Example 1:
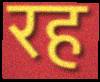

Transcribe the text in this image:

रह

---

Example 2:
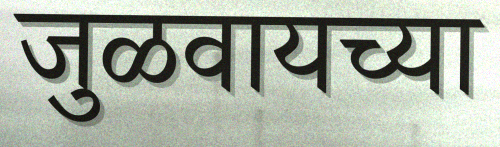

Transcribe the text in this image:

जुळवायच्या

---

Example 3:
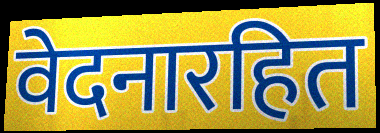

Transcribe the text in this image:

वेदनारहित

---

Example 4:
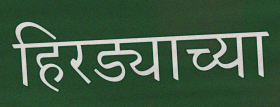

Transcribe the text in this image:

हिरड्याच्या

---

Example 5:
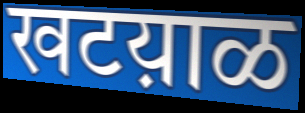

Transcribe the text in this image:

खटय़ाळ